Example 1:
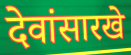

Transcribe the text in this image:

देवांसारखे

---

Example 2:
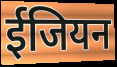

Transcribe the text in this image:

ईजियन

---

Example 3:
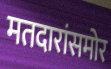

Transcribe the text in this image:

मतदारांसमोर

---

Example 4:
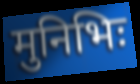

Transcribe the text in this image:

मुनिभिः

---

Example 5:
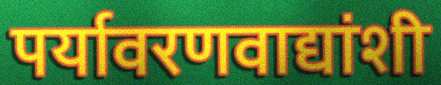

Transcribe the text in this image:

पर्यावरणवाद्यांशी